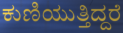
ಕುಣಿಯುತ್ತಿದ್ದರೆ